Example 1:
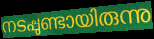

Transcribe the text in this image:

നടപ്പുണ്ടായിരുന്നു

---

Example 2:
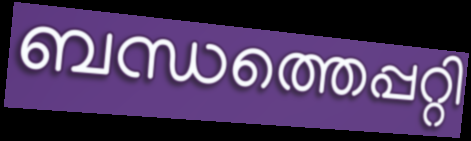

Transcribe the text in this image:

ബന്ധത്തെപ്പറ്റി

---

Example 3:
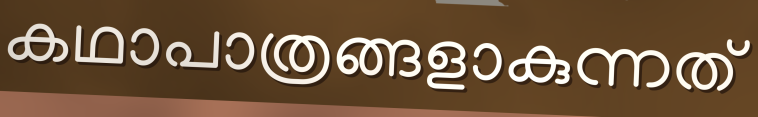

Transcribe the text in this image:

കഥാപാത്രങ്ങളാകുന്നത്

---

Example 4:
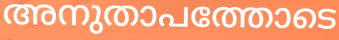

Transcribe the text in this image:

അനുതാപത്തോടെ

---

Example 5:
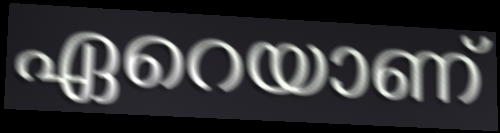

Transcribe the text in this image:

ഏറെയാണ്